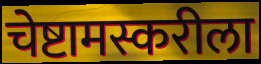
चेष्टामस्करीला